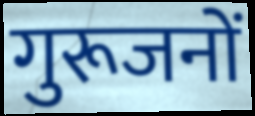
गुरूजनों